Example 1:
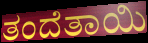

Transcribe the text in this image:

ತಂದೆತಾಯಿ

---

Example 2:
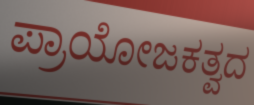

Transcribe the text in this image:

ಪ್ರಾಯೋಜಕತ್ವದ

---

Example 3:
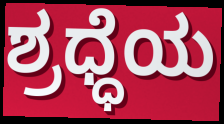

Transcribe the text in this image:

ಶ್ರಧ್ಧೆಯ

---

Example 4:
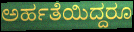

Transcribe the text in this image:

ಅರ್ಹತೆಯಿದ್ದರೂ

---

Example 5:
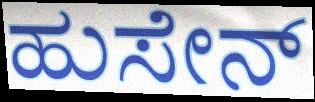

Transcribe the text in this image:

ಹುಸೇನ್